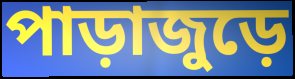
পাড়াজুড়ে